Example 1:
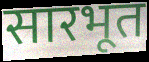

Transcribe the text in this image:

सारभूत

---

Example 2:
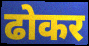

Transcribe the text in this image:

ढोकर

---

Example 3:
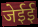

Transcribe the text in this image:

जेईई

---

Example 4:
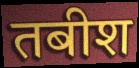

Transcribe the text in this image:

तबीश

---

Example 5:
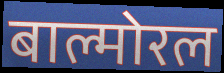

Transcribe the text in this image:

बाल्‍मोरल